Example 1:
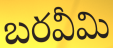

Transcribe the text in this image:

బరవీమి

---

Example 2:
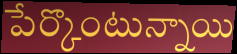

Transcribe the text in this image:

పేర్కొంటున్నాయి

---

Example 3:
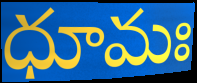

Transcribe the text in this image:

ధూమః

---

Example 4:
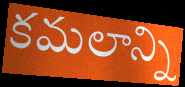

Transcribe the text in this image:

కమలాన్ని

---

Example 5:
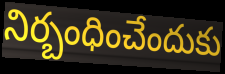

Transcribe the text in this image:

నిర్బంధించేందుకు